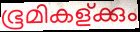
ഭൂമികള്ക്കും